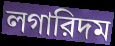
লগারিদম